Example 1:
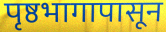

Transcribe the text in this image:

पृष्ठभागापासून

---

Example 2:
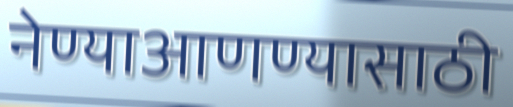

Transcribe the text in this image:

नेण्याआणण्यासाठी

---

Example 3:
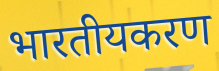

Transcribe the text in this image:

भारतीयकरण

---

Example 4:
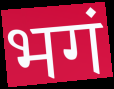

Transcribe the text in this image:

भगं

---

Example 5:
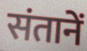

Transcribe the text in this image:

संतानें